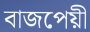
বাজপেয়ী